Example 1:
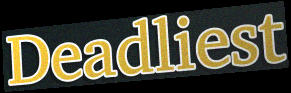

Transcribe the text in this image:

Deadliest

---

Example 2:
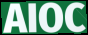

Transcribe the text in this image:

AIOC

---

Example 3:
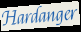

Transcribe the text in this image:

Hardanger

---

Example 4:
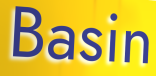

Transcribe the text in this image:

Basin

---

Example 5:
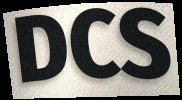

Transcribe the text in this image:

DCS